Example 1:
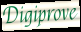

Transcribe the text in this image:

Digiprove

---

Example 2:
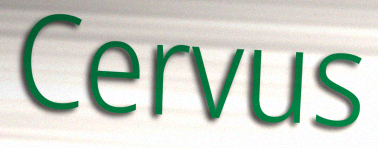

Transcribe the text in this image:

Cervus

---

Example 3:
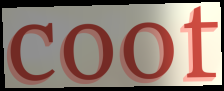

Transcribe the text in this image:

coot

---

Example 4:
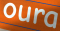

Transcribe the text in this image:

oura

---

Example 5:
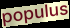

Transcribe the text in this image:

populus